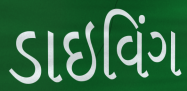
ડાઇવિંગ